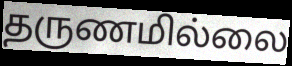
தருணமில்லை